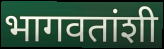
भागवतांशी